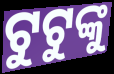
ଟୁଟୁଙ୍କୁ